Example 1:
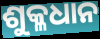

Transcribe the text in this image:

ଶୁକ୍ଳଧାନ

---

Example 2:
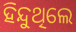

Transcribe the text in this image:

ହିନ୍ଦୁଥିଲେ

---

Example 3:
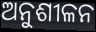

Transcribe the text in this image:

ଅନୁଶୀଳନ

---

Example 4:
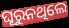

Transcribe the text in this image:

ଘୂରୁନଥିଲେ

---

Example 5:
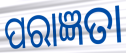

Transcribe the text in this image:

ପରାଜ୍ଞତା